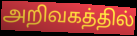
அறிவகத்தில்